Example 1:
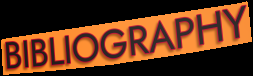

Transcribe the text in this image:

BIBLIOGRAPHY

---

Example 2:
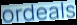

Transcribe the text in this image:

ordeals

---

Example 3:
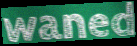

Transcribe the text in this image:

waned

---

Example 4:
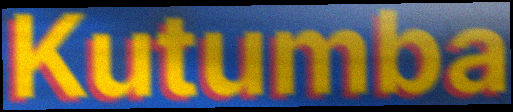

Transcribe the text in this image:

Kutumba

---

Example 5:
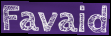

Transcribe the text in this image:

Favaid